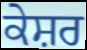
ਕੇਸ਼ਰ